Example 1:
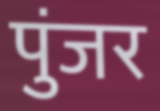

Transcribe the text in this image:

पुंजर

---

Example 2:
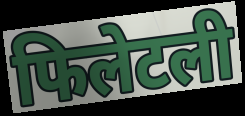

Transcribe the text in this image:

फिलेटली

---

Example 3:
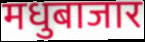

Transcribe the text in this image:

मधुबाजार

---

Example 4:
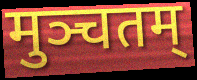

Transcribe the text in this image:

मुञ्चतम्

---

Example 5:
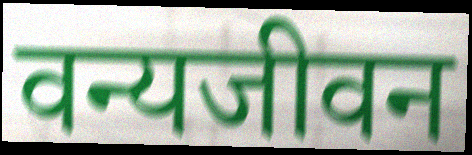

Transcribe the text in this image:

वन्यजीवन